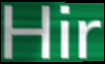
Hir